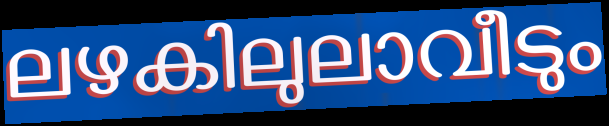
ലഴകിലുലാവീടും